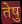
तेषु